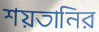
শয়তানির